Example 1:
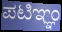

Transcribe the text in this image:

ಪಟಿಞ್ಞಂ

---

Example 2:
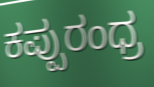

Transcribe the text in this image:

ಕಪ್ಪುರಂಧ್ರ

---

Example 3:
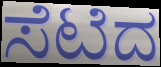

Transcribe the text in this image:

ಸೆಟೆದ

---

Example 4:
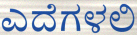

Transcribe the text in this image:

ಎದೆಗಳಲಿ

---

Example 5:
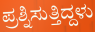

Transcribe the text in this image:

ಪ್ರಶ್ನಿಸುತ್ತಿದ್ದಳು